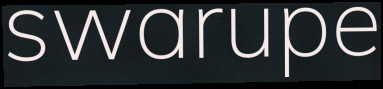
swarupe